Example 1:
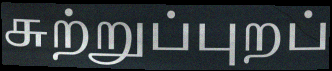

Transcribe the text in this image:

சுற்றுப்புறப்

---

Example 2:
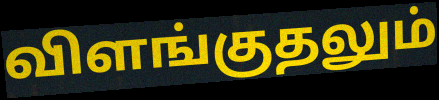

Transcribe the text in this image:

விளங்குதலும்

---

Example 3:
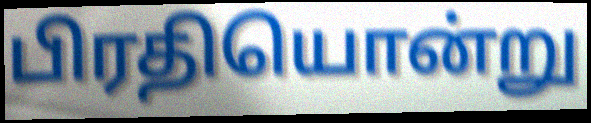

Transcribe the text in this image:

பிரதியொன்று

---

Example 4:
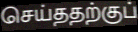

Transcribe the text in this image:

செய்ததற்குப்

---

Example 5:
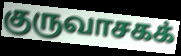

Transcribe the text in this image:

குருவாசகக்